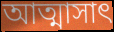
আত্মাসাৎ